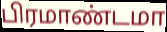
பிரமாண்டமா